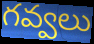
గవ్వలు